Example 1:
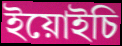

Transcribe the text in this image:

ইয়োইচি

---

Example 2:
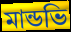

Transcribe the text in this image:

মান্ডভি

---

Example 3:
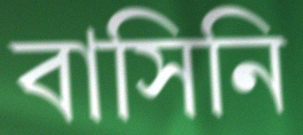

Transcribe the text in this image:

বাসিনি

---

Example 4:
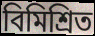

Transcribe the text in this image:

বিমিশ্রিত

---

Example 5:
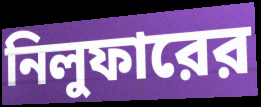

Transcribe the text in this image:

নিলুফারের